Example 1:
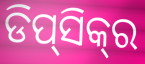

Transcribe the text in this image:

ଡିପ୍‌ସିକ୍‌ର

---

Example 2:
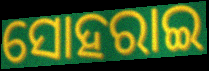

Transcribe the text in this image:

ସୋହରାଇ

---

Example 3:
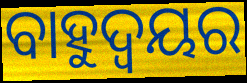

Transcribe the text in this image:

ବାହୁଦ୍ୱୟର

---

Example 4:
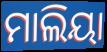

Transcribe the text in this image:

ମାଲିୟା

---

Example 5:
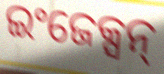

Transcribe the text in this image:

ଇଂଜେକ୍ସନ୍